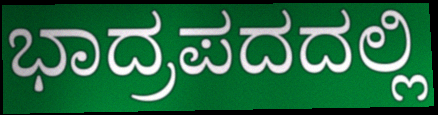
ಭಾದ್ರಪದದಲ್ಲಿ